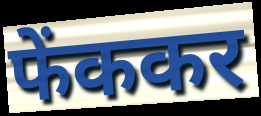
फेंककर